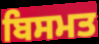
ਬਿਸਮਤ